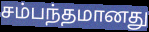
சம்பந்தமானது